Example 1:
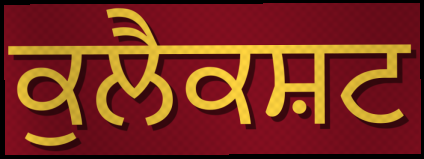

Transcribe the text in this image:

ਕੁਲੈਕਸ਼ਟ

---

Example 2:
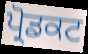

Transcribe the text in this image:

ਪ੍ਰੋਡਕਟ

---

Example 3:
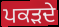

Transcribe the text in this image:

ਪਕੜਦੇ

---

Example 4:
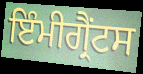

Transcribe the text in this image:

ਇੰਮੀਗ੍ਰੈਂਟਸ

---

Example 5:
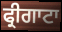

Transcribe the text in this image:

ਫ੍ਰੀਗਾਟਾ